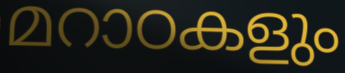
മറാഠകളും